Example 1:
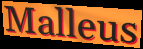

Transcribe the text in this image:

Malleus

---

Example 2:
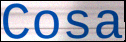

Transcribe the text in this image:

Cosa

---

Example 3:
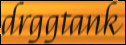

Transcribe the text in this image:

drggtank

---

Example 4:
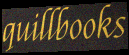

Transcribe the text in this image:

quillbooks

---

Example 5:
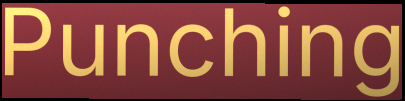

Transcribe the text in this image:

Punching